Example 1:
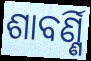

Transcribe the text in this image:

ଶାବର୍ଣ୍ଣି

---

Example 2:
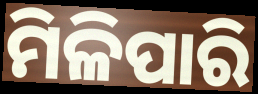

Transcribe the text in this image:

ମିଳିପାରି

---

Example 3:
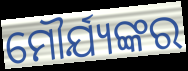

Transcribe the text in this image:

ମୌର୍ଯ୍ୟଙ୍କର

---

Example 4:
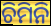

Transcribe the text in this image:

ଚିମିନି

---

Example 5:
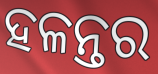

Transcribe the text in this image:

ହଳନ୍ତର